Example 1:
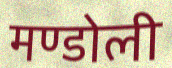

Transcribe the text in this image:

मण्डोली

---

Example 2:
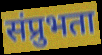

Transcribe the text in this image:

संप्रुभता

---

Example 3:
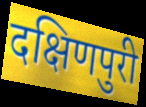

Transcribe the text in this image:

दक्षिणपुरी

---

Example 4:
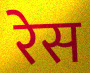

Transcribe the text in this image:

रेस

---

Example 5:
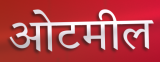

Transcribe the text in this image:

ओटमील